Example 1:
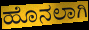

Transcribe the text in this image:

ಹೊನಲಾಗಿ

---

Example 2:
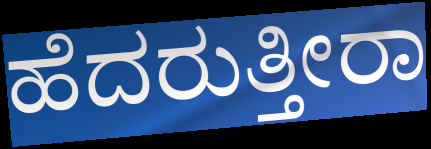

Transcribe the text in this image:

ಹೆದರುತ್ತೀರಾ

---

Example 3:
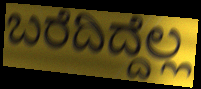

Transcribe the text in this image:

ಬರೆದಿದ್ದೆಲ್ಲ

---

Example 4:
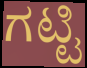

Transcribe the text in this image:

ಗಟ್ಟಿ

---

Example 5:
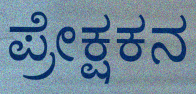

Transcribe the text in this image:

ಪ್ರೇಕ್ಷಕನ